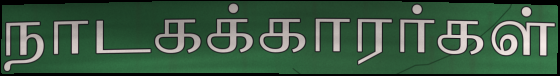
நாடகக்காரர்கள்